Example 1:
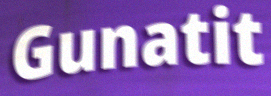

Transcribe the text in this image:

Gunatit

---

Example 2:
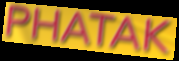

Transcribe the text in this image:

PHATAK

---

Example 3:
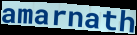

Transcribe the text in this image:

amarnath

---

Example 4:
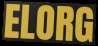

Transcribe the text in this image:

ELORG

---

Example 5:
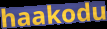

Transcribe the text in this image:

haakodu